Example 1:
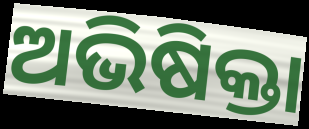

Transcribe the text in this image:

ଅଭିଷିକ୍ତା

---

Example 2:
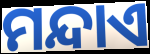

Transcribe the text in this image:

ମନ୍ଦାଏ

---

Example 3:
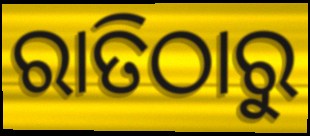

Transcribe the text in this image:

ରାତିଠାରୁ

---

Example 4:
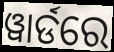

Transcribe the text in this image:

ୱାର୍ଡରେ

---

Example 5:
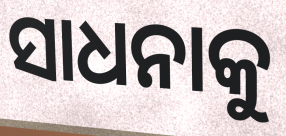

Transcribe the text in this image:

ସାଧନାକୁ